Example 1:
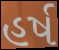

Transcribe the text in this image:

હર્ષ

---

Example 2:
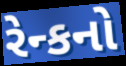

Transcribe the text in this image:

રેન્કનો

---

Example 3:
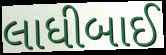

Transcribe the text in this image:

લાધીબાઈ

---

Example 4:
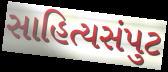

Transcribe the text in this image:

સાહિત્યસંપુટ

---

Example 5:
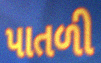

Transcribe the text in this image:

પાતળી